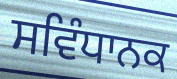
ਸਵਿੰਧਾਨਕ